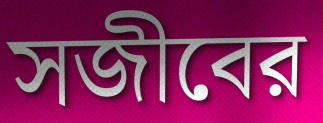
সজীবের